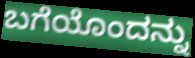
ಬಗೆಯೊಂದನ್ನು